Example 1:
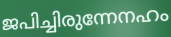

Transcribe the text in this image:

ജപിച്ചിരുന്നേനഹം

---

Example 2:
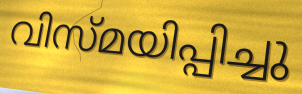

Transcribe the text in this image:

വിസ്മയിപ്പിച്ചു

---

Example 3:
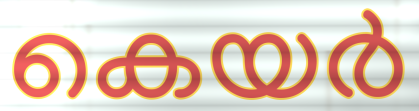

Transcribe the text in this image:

കെയർ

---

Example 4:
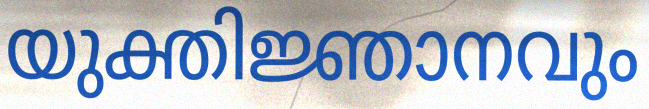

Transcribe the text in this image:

യുക്തിജ്ഞാനവും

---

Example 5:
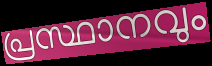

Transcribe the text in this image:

പ്രസ്ഥാനവും